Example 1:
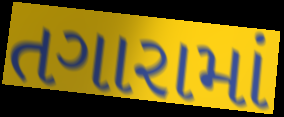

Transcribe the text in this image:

તગારામાં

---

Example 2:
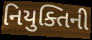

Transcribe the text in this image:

નિયુક્તિની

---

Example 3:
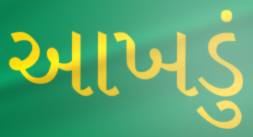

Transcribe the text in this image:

આખડું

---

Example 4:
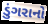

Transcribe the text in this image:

ડુંગરાનો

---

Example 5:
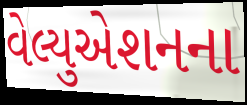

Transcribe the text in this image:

વેલ્યુએશનના